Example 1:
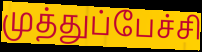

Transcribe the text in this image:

முத்துப்பேச்சி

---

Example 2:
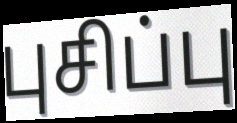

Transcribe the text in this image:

புசிப்பு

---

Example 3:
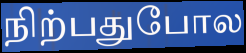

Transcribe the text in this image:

நிற்பதுபோல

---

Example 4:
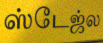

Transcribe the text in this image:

ஸ்டேஜ்ல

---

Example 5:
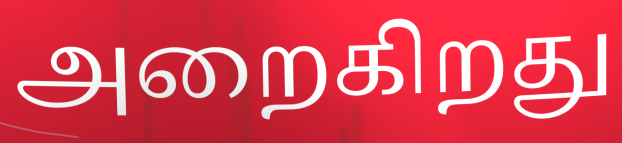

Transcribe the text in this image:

அறைகிறது